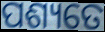
ପଶ୍ୟତେ